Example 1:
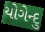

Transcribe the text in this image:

યોગેન્દુ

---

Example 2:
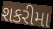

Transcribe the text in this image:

શકરીમા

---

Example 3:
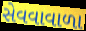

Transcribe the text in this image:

સેવવાવાળા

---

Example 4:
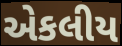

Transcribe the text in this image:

એકલીય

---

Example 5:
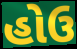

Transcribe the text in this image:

હોઉ